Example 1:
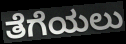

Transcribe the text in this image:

ತೆಗೆಯಲು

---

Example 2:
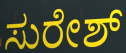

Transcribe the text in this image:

ಸುರೇಶ್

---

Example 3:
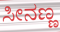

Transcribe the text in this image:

ಸೀನಣ್ಣ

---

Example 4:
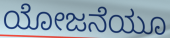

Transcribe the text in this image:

ಯೋಜನೆಯೂ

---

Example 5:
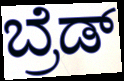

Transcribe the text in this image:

ಬ್ರೆಡ್